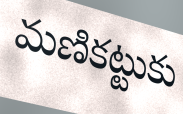
మణికట్టుకు